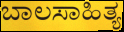
ಬಾಲಸಾಹಿತ್ಯ